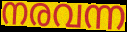
നരവന്ന